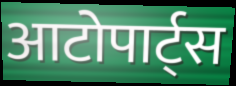
आटोपार्ट्स